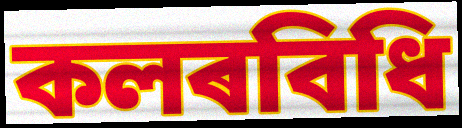
কলৰবিধি